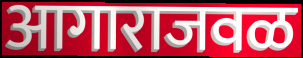
आगाराजवळ